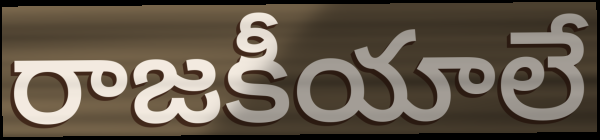
రాజకీయాలే